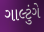
ગાલ્ટુંગે